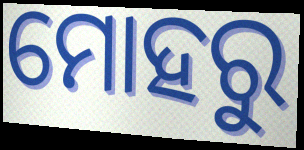
ମୋହରୁ